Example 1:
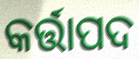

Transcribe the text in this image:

କର୍ତ୍ତାପଦ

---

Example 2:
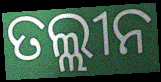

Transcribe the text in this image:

ତଲ୍ଲୀନ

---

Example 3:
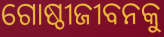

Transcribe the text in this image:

ଗୋଷ୍ଠୀଜୀବନକୁ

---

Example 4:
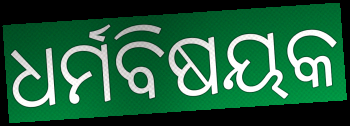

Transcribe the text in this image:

ଧର୍ମବିଷୟକ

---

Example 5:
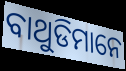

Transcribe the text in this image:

ବାଥୁଡିମାନେ